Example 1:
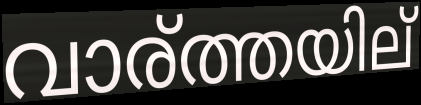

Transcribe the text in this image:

വാര്ത്തയില്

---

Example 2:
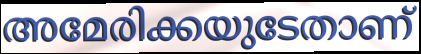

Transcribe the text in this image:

അമേരിക്കയുടേതാണ്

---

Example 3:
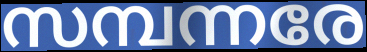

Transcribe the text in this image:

സമ്പന്നരേ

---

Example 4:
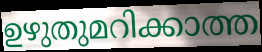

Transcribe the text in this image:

ഉഴുതുമറിക്കാത്ത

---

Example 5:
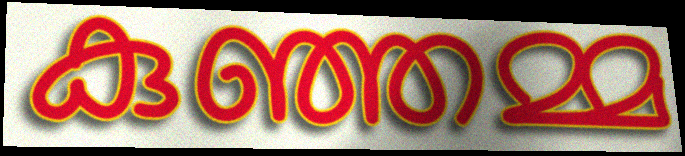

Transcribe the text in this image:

കുഞ്ഞമ്മ